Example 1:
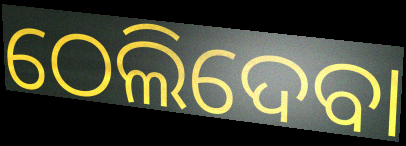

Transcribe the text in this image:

ଠେଲିଦେବା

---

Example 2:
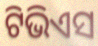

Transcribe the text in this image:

ଟିଭିଏସ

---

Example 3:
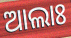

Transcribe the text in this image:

ଆଲାଃ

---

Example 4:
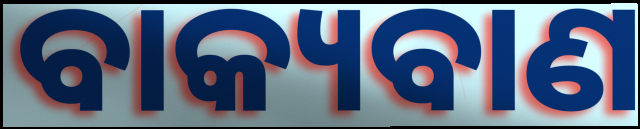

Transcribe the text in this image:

ବାକ୍ୟବାଣ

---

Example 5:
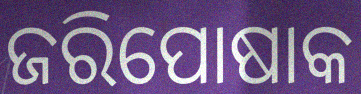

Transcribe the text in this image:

ଜରିପୋଷାକ